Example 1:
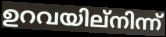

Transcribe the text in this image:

ഉറവയില്നിന്ന്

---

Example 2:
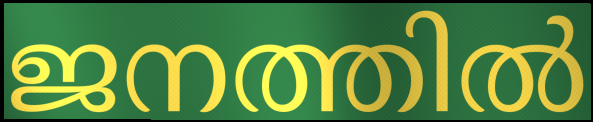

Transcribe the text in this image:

ജനത്തിൽ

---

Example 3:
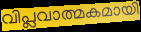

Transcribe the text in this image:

വിപ്ലവാത്മകമായി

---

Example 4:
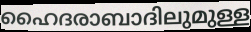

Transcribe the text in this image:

ഹൈദരാബാദിലുമുള്ള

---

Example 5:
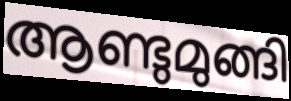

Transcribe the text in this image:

ആണ്ടുമുങ്ങി